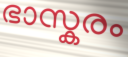
ഭാസ്കരം